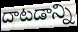
దాటడాన్ని